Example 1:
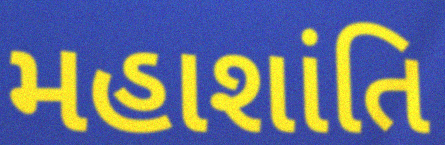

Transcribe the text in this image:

મહાશાંતિ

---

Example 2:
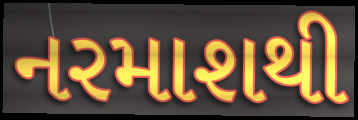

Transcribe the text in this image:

નરમાશથી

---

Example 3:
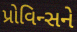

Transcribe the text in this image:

પ્રોવિન્સને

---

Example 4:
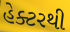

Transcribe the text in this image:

હેક્ટરથી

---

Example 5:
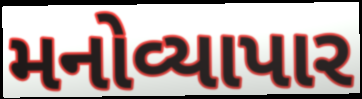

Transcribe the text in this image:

મનોવ્યાપાર